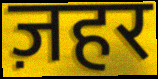
ज़हर